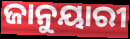
ଜାନୁୟାରୀ